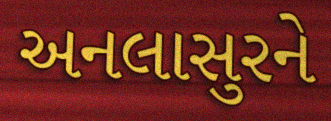
અનલાસુરને